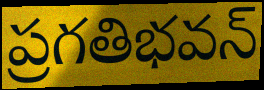
ప్రగతిభవన్